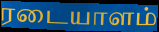
ரடையாளம்